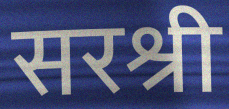
सरश्री